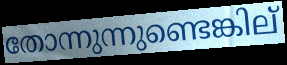
തോന്നുന്നുണ്ടെങ്കില്